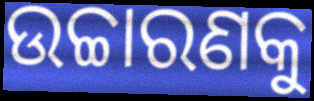
ଉଚ୍ଚାରଣକୁ